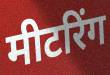
मीटरिंग